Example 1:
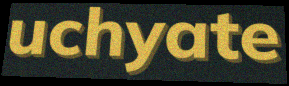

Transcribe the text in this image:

uchyate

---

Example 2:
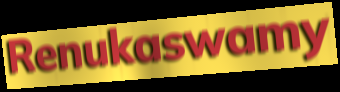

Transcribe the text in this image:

Renukaswamy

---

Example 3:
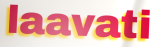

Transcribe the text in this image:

laavati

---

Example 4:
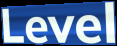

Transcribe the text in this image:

Level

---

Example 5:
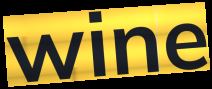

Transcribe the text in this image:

wine